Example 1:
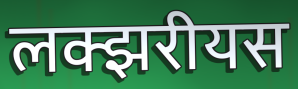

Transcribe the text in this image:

लक्झरीयस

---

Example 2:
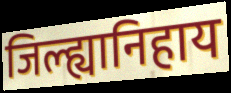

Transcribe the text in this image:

जिल्ह्यानिहाय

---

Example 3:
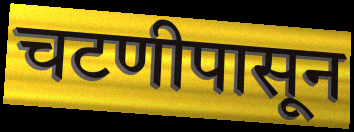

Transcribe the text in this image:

चटणीपासून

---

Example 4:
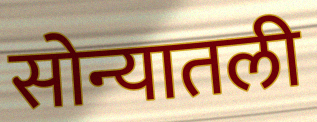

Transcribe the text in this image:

सोन्यातली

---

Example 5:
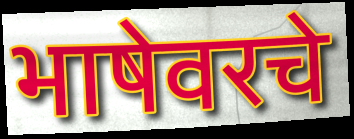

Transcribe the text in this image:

भाषेवरचे